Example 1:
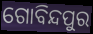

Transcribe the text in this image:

ଗୋବିନ୍ଦପୁର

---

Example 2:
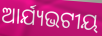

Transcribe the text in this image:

ଆର୍ଯ୍ୟଭଟୀୟ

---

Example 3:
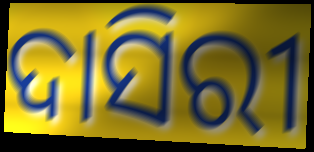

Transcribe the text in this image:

ଦାସିରୀ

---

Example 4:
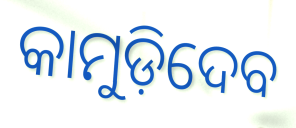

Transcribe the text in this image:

କାମୁଡ଼ିଦେବ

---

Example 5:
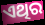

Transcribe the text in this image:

ଏଥିର